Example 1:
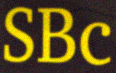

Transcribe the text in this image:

SBc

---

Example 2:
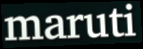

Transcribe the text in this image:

maruti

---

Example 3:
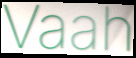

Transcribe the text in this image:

Vaah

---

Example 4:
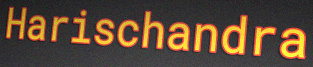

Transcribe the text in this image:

Harischandra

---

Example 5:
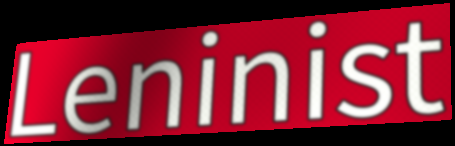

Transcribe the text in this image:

Leninist